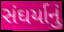
સંઘર્યાનું